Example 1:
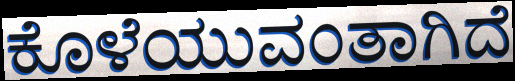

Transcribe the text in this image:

ಕೊಳೆಯುವಂತಾಗಿದೆ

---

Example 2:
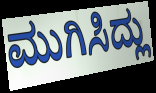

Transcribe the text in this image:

ಮುಗಿಸಿದ್ಲು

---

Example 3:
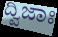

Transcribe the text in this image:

ದ್ವಿಜಾಃ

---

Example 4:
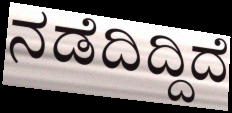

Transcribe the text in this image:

ನಡೆದಿದ್ದಿದೆ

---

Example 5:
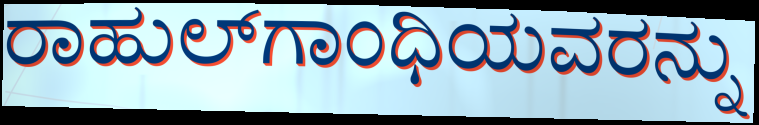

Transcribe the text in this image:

ರಾಹುಲ್‌ಗಾಂಧಿಯವರನ್ನು